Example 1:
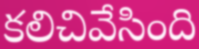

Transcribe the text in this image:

కలిచివేసింది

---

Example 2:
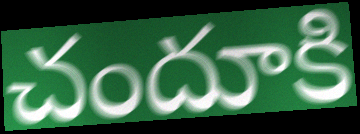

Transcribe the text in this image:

చందూకి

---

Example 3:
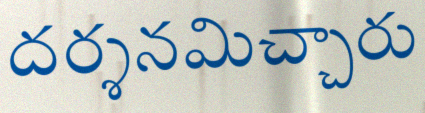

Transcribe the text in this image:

దర్శనమిచ్చారు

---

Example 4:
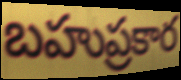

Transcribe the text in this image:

బహుప్రకార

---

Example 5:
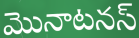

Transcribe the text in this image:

మొనాటనస్